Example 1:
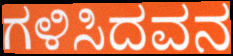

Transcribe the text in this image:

ಗಳಿಸಿದವನ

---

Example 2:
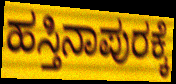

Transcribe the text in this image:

ಹಸ್ತಿನಾಪುರಕ್ಕೆ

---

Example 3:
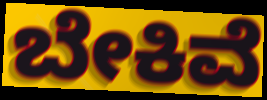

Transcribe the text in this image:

ಬೇಕಿವೆ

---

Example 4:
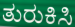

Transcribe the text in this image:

ತುರುಕಿಸಿ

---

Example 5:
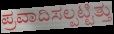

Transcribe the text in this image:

ಪ್ರವಾದಿಸಲ್ಪಟ್ಟಿತ್ತು